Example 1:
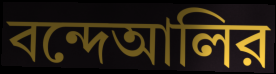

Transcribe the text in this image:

বন্দেআলির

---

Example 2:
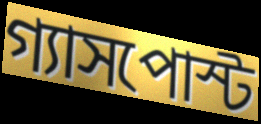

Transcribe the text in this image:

গ্যাসপোস্ট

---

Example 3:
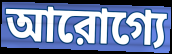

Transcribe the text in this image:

আরোগ্যে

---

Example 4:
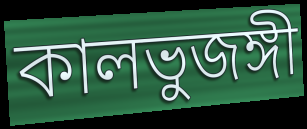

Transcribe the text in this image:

কালভুজঙ্গী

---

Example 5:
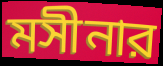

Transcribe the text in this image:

মসীনার